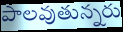
పాలవుతున్నరు